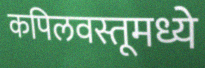
कपिलवस्तूमध्ये